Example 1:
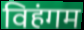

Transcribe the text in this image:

विहंगम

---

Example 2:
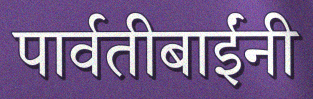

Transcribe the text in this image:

पार्वतीबाईंनी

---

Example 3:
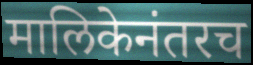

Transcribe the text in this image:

मालिकेनंतरच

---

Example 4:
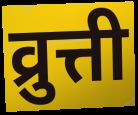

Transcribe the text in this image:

व्रुत्ती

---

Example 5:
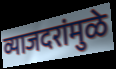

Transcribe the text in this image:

व्याजदरांमुळे